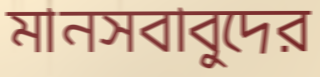
মানসবাবুদের